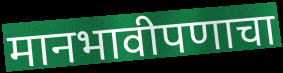
मानभावीपणाचा